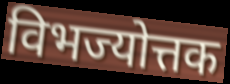
विभज्योत्तक